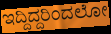
ಇದ್ದಿದ್ದರಿಂದಲೋ